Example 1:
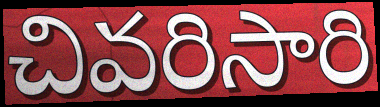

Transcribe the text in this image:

చివరిసారి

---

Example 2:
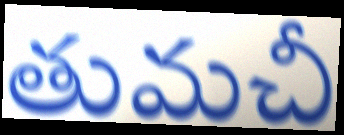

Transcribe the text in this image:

తుమచీ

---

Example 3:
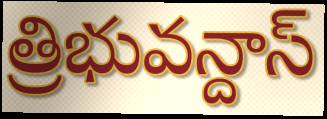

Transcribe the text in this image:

త్రిభువన్దాస్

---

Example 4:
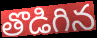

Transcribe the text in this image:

తొడిగిన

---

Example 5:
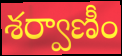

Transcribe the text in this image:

శర్వాణీం